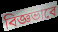
বিজ্ঞভাবে